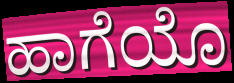
ಹಾಗೆಯೊ